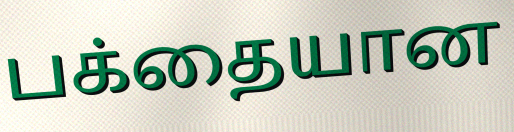
பக்தையான